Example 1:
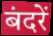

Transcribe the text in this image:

बंदरें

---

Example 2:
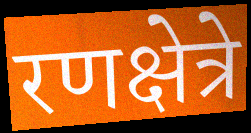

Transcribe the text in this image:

रणक्षेत्रे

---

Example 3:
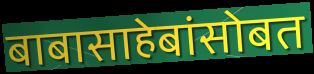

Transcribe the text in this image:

बाबासाहेबांसोबत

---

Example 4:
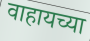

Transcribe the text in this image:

वाहायच्या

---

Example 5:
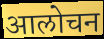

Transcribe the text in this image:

आलोचन